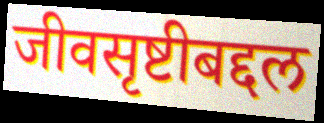
जीवसृष्टीबद्दल